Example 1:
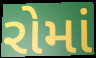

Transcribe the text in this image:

રોમાં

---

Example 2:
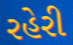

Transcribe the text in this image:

રહેરી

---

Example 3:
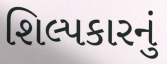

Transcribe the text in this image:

શિલ્પકારનું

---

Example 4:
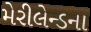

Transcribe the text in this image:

મેરીલેન્ડના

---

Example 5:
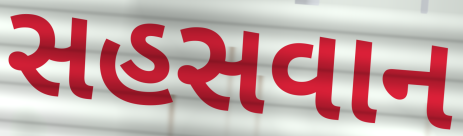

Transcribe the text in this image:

સહસવાન